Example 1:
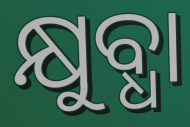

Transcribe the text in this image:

କ୍ଷୁବ୍ଧା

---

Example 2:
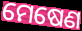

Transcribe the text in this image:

ମେଷେଣ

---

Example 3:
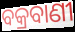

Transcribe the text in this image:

ବକ୍ରବାଣୀ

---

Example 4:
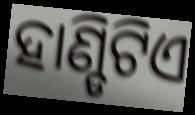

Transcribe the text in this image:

ହାଣ୍ଡିଟିଏ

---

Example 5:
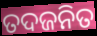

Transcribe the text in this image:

ତଦଜନିତ